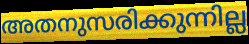
അതനുസരിക്കുന്നില്ല